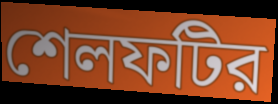
শেলফটির